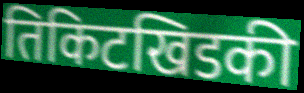
तिकिटखिडकी